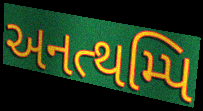
અનત્થમ્પિ